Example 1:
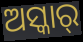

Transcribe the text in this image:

ଅସ୍କାର୍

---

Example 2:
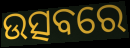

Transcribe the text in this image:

ଉତ୍ସବରେ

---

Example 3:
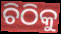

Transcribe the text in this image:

ଚିଠିକୁ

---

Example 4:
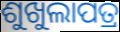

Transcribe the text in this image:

ଶୁଖୁଲାପତ୍ର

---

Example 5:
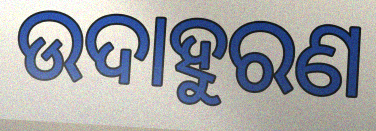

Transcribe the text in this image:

ଉଦାହୁରଣ